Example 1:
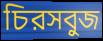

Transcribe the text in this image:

চিরসবুজ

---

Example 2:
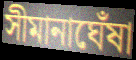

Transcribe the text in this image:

সীমানাঘেঁষা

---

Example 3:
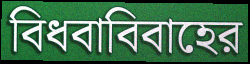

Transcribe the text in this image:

বিধবাবিবাহের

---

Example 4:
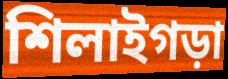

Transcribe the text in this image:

শিলাইগড়া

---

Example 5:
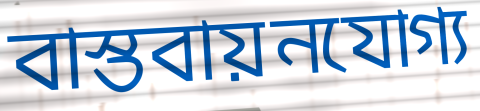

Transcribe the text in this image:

বাস্তবায়নযোগ্য